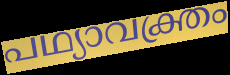
പഥ്യാവക്ത്രം